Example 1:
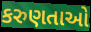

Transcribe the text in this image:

કરુણતાઓ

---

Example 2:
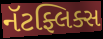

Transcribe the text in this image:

નૅટફ્લિક્સ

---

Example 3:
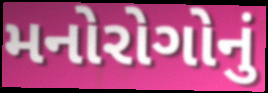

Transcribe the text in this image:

મનોરોગોનું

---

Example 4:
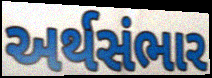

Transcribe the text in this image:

અર્થસંભાર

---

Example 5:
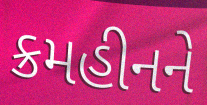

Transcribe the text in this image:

ક્રમહીનને